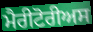
ਮੈਰੀਟੋਰੀਅਸ